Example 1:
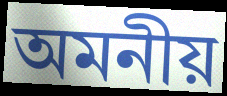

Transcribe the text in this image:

অমনীয়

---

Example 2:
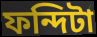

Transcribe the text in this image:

ফন্দিটা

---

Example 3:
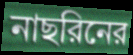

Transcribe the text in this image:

নাছরিনের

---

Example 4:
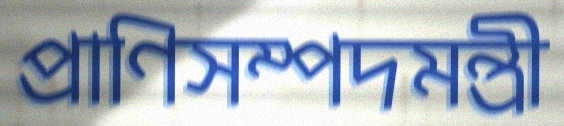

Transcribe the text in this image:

প্রাণিসম্পদমন্ত্রী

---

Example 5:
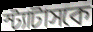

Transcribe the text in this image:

স্ট্যাটাসকে